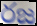
రజ